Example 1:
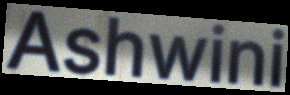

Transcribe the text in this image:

Ashwini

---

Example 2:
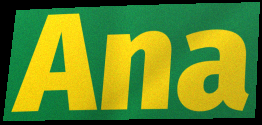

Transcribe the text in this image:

Ana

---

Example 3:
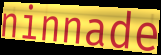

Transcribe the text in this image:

ninnade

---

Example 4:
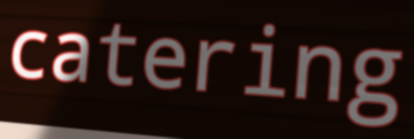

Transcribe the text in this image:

catering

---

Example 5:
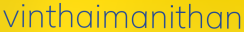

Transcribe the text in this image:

vinthaimanithan